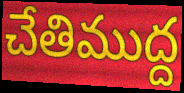
చేతిముద్ద